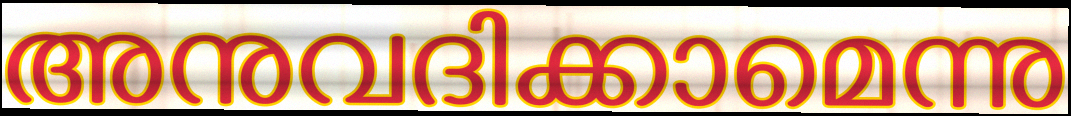
അനുവദിക്കാമെന്നു